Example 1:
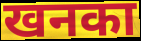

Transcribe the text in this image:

खनका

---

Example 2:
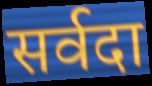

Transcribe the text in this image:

सर्वदा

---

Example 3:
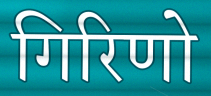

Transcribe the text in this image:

गिरिणो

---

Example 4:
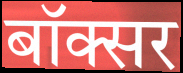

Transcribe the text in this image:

बॉक्सर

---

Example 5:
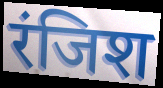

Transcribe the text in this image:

रंजिश